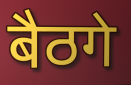
बैठगे